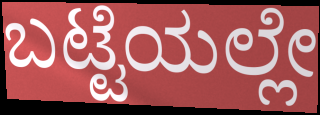
ಬಟ್ಟೆಯಲ್ಲೇ